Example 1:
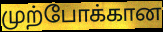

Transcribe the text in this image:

முற்போக்கான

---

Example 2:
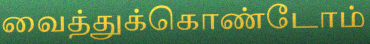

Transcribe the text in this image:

வைத்துக்கொண்டோம்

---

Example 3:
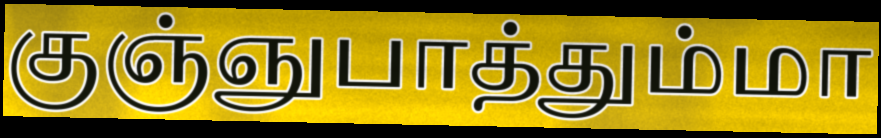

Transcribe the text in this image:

குஞ்ஞுபாத்தும்மா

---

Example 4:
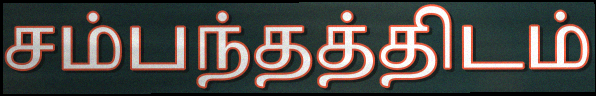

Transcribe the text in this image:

சம்பந்தத்திடம்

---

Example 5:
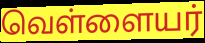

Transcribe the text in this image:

வெள்ளையர்